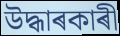
উদ্ধাৰকাৰী